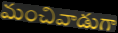
మంచివాడుగా